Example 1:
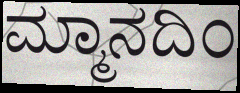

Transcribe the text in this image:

ಮ್ಮಾನದಿಂ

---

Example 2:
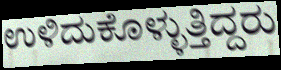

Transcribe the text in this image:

ಉಳಿದುಕೊಳ್ಳುತ್ತಿದ್ದರು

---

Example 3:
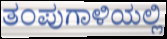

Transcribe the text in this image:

ತಂಪುಗಾಳಿಯಲ್ಲಿ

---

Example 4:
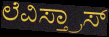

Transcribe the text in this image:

ಲೆವಿಸ್ತ್ರಾಸ್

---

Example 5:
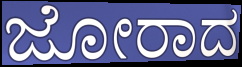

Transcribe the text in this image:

ಜೋರಾದ